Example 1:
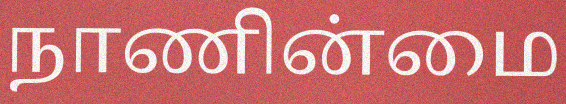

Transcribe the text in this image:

நாணின்மை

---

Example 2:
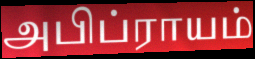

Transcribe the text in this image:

அபிப்ராயம்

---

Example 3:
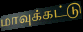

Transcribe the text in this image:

மாவுக்கட்டு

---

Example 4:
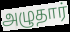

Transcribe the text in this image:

அழுதார்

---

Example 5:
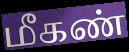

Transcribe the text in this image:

மீகண்